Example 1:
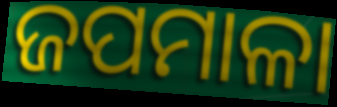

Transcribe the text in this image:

ଜପମାଳା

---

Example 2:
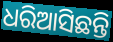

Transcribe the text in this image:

ଧରିଆସିଛନ୍ତି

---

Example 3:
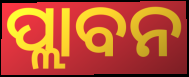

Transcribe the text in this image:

ପ୍ଲାବନ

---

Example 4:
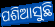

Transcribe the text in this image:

ପଶିଆସୁଛି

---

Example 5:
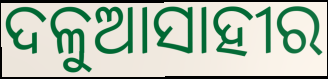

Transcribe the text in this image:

ଦଳୁଆସାହୀର